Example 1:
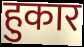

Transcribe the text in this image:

हुकार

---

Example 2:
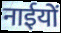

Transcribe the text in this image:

नाईयों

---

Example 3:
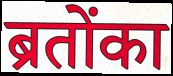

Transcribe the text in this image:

ब्रतोंका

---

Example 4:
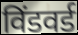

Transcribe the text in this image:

विंडवर्ड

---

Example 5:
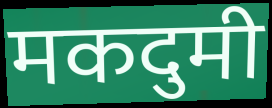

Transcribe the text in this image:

मकदुमी